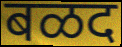
बळद